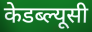
केडब्ल्यूसी